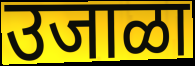
उजाळा